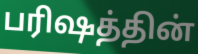
பரிஷத்தின்